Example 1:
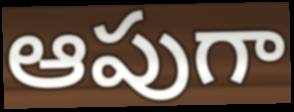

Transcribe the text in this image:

ఆపుగా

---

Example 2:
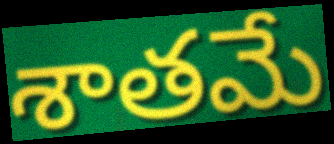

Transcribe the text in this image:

శాతమే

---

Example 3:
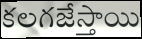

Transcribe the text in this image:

కలగజేస్తాయి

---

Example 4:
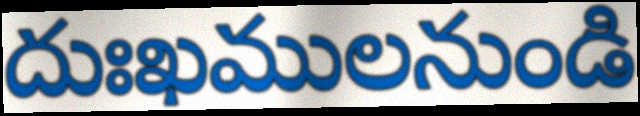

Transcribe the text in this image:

దుఃఖములనుండి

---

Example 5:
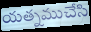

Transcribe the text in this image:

యత్నముచేసి